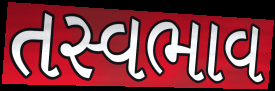
તસ્વભાવ